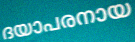
ദയാപരനായ